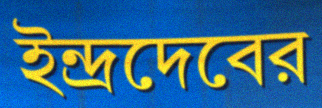
ইন্দ্রদেবের